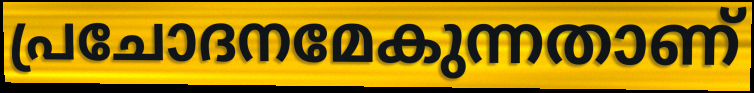
പ്രചോദനമേകുന്നതാണ്